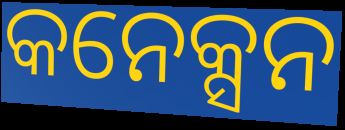
କନେକ୍ସନ